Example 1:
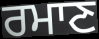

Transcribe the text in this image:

ਰਮਾਣ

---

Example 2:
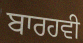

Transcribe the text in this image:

ਬਾਰਹਵੀ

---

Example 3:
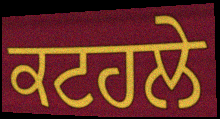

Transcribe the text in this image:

ਕਟਹਲੇ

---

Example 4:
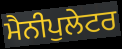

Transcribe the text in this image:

ਮੈਨੀਪੁਲੇਟਰ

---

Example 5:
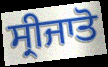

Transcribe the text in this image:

ਸ੍ਰੀਜਾਤੋ